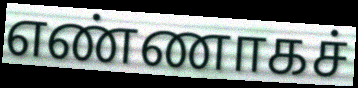
எண்ணாகச்